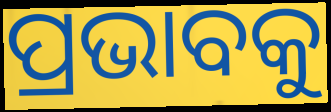
ପ୍ରଭାବକୁ